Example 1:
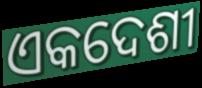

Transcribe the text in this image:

ଏକଦେଶୀ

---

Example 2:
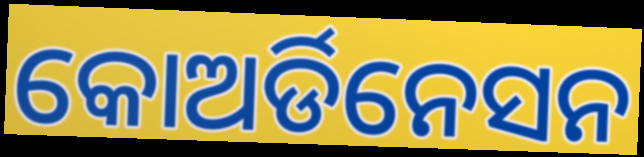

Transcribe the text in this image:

କୋଅର୍ଡିନେସନ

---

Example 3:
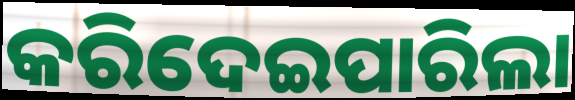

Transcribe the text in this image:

କରିଦେଇପାରିଲା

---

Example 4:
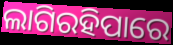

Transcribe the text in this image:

ଲାଗିରହିପାରେ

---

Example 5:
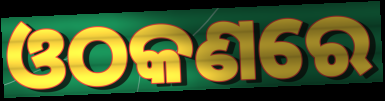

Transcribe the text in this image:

ଓଠକଣରେ